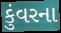
કુંવરના